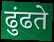
ढुंढते